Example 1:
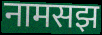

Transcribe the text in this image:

नामसझ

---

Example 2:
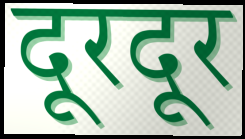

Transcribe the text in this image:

दूरदूर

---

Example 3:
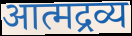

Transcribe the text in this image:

आत्मद्रव्य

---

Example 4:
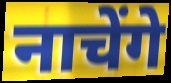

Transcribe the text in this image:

नाचेंगे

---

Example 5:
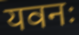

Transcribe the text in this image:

यवनः